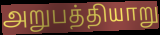
அறுபத்தியாறு